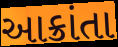
આક્રાંતા